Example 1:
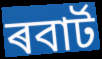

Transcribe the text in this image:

ৰবাৰ্ট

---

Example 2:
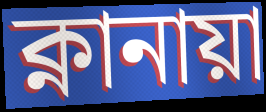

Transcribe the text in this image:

ক্নানায়া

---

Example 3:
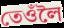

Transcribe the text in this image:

তেওঁলৈ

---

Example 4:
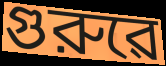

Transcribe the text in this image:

গুৰুৱে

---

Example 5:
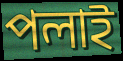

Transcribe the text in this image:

পলাই